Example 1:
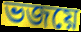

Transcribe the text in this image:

ভজয়ে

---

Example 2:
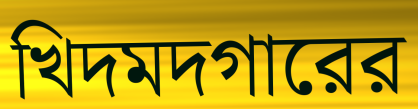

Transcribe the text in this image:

খিদমদগারের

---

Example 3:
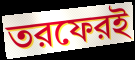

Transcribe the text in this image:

তরফেরই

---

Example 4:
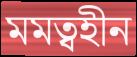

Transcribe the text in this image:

মমত্বহীন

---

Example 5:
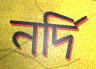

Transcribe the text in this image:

নর্দি